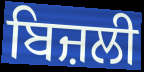
ਬਿਜ਼ਲੀ